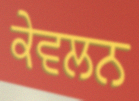
ਕੇਵਲਨ